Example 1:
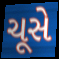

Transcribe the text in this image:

ચૂસે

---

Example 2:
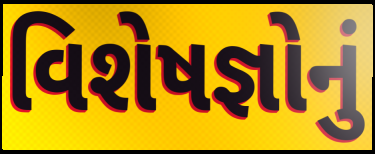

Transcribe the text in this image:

વિશેષજ્ઞોનું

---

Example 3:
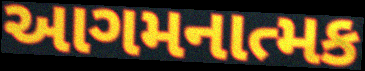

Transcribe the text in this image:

આગમનાત્મક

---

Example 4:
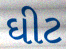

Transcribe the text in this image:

ઘીટ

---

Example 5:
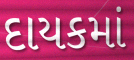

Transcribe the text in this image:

દાયકમાં